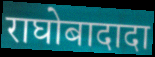
राघोबादादा